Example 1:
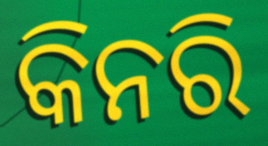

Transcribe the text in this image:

କିନରି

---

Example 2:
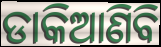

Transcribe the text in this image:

ଡାକିଆଣିବି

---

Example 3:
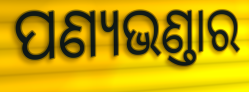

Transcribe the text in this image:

ପଣ୍ୟଭଣ୍ଡାର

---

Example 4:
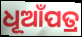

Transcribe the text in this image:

ଧୂଆଁପତ୍ର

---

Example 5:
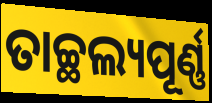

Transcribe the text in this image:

ତାଚ୍ଛଲ୍ୟପୂର୍ଣ୍ଣ